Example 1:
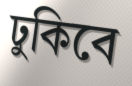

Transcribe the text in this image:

ঢুকিবে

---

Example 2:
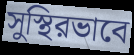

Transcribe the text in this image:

সুস্থিরভাবে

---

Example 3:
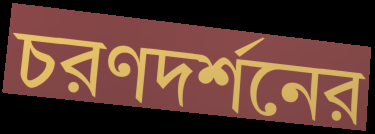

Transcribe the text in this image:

চরণদর্শনের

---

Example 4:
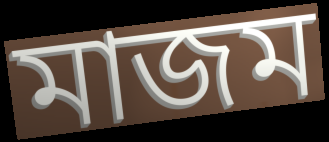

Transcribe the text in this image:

মাজম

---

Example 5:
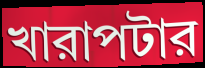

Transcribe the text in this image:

খারাপটার